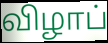
விழாப்